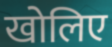
खोलिए